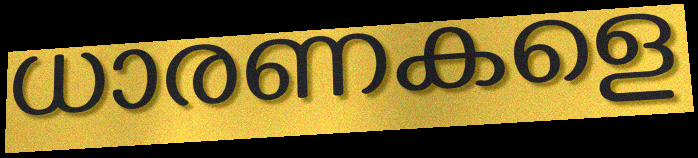
ധാരണകളെ